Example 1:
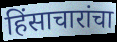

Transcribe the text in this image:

हिंसाचारांचा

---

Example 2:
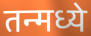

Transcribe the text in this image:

तन्मध्ये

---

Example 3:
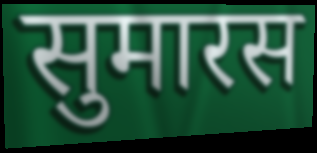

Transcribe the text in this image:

सुमारस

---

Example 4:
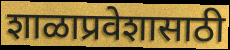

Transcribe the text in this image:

शाळाप्रवेशासाठी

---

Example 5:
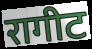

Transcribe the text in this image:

रागीट